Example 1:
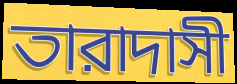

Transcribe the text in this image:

তারাদাসী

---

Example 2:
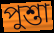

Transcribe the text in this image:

পুশ্তা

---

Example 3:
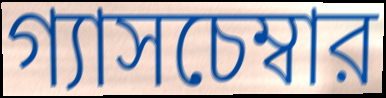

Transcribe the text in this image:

গ্যাসচেম্বার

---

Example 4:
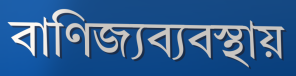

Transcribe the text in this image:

বাণিজ্যব্যবস্থায়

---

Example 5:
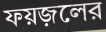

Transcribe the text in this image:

ফয়জ়লের